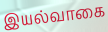
இயல்வாகை